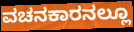
ವಚನಕಾರನಲ್ಲೂ